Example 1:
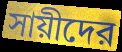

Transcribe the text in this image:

সায়ীদের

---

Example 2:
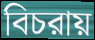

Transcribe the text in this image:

বিচরায়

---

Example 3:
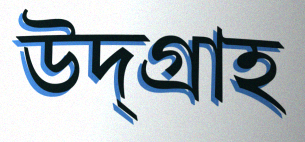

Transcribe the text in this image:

উদ্গ্রাহ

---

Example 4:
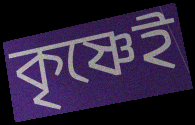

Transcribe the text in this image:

কৃষ্ণেই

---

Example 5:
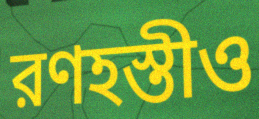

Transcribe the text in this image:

রণহস্তীও